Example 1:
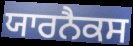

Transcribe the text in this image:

ਯਾਰਨੈਕਸ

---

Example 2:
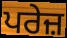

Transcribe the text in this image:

ਪਰੇਜ਼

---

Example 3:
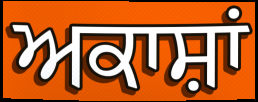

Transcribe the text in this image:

ਅਕਾਸ਼ਾਂ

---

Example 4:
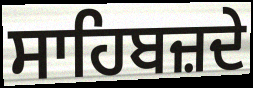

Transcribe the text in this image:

ਸਾਹਿਬਜ਼ਦੇ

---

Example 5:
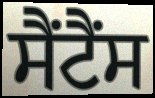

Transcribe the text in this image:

ਸੈਂਟੈਂਸ